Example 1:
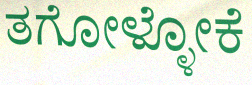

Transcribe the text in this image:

ತಗೋಳ್ಳೋಕೆ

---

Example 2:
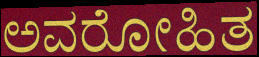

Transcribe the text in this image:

ಅವರೋಹಿತ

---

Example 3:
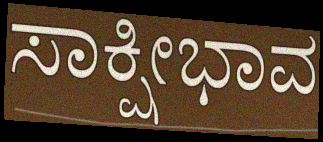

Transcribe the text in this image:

ಸಾಕ್ಷೀಭಾವ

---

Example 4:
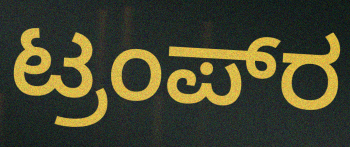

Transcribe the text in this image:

ಟ್ರಂಪ್‍ರ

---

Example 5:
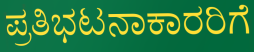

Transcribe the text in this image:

ಪ್ರತಿಭಟನಾಕಾರರಿಗೆ